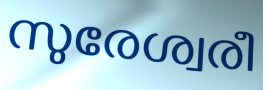
സുരേശ്വരീ